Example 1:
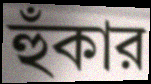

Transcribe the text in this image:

হুঁকার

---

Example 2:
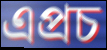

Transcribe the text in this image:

এপ্রচ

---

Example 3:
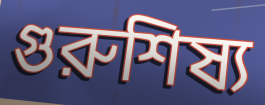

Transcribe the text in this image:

গুরুশিষ্য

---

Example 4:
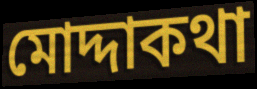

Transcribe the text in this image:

মোদ্দাকথা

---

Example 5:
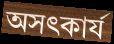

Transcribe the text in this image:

অসৎকার্য